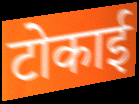
टोकाई